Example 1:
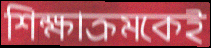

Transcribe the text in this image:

শিক্ষাক্রমকেই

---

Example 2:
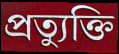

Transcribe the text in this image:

প্রত্যুক্তি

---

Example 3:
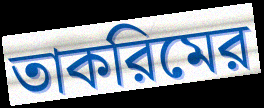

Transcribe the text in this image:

তাকরিমের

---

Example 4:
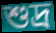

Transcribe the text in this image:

শুদ্র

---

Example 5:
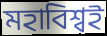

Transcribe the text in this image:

মহাবিশ্বই